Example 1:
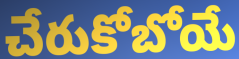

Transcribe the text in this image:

చేరుకోబోయే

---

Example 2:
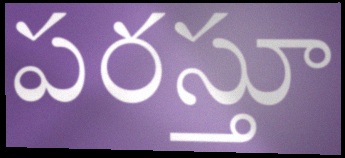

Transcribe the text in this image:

పరస్తూ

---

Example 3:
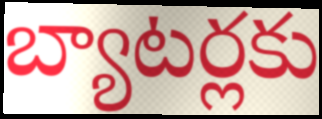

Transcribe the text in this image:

బ్యాటర్లకు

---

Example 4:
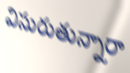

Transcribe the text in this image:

విసురుతున్నారా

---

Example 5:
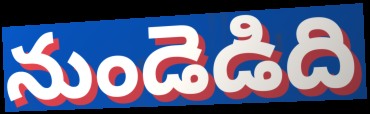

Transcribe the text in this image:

నుండెడిది